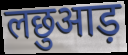
लछुआड़